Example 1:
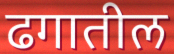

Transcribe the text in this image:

ढगातील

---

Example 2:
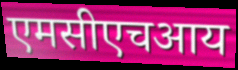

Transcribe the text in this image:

एमसीएचआय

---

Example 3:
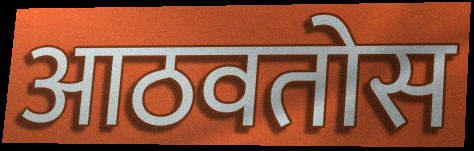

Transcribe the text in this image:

आठवतोस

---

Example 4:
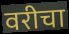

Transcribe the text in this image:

वरीचा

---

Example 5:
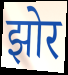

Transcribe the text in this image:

झोर